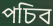
পচিব